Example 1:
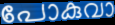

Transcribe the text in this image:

പോകുവാ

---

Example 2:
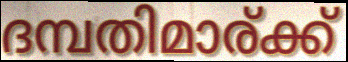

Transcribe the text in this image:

ദമ്പതിമാര്ക്ക്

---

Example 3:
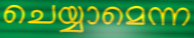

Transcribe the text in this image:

ചെയ്യാമെന്ന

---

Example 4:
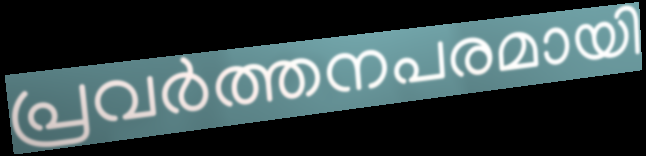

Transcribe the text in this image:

പ്രവർത്തനപരമായി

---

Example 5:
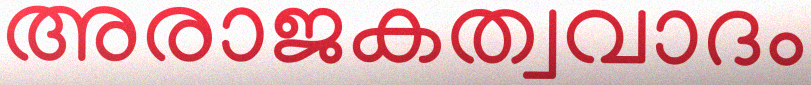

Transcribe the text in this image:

അരാജകത്വവാദം